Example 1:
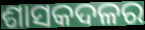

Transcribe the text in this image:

ଶାସକଦଳର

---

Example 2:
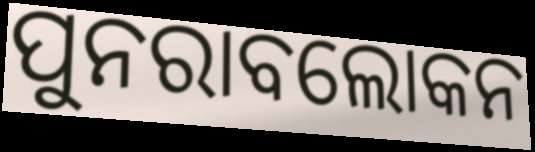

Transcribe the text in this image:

ପୁନରାବଲୋକନ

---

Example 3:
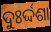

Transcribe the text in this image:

ଦୁଃର୍ଦ୍ଦଶା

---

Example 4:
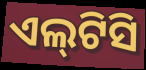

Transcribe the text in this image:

ଏଲ୍‌ଟିସି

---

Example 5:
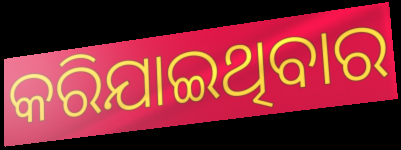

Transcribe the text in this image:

କରିଯାଇଥିବାର